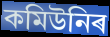
কমিউনিৰ